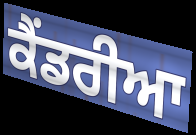
ਕੈਂਡਰੀਆ